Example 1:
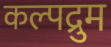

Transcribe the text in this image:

कल्पद्रुम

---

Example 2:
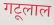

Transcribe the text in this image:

गटूलाल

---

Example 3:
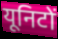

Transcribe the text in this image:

यूनिटों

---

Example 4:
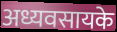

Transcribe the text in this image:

अध्यवसायके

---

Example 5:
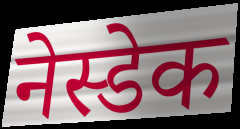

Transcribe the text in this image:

नेस्डेक